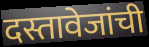
दस्तावेजांची